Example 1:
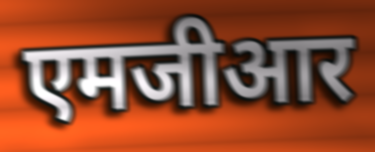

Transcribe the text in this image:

एमजीआर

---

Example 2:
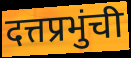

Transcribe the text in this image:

दत्तप्रभुंची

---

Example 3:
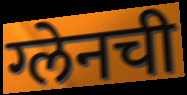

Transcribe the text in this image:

ग्लेनची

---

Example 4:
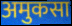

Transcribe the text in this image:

अमुकसा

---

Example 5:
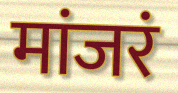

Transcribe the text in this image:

मांजरं